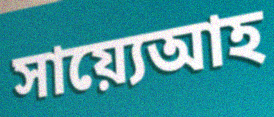
সায়্যেআহ